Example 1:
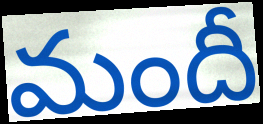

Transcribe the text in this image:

మందీ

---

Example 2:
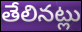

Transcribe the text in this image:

తేలినట్లు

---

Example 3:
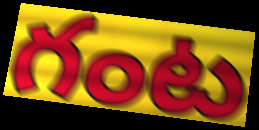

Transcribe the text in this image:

గంట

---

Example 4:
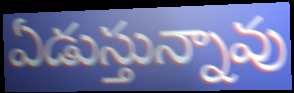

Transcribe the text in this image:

ఏడుస్తున్నావు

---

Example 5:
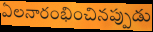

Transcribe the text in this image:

ఏలనారంభించినప్పుడు